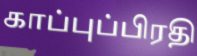
காப்புப்பிரதி